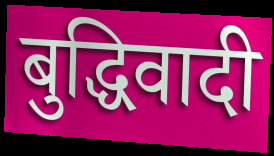
बुद्धिवादी